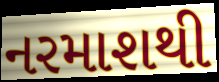
નરમાશથી